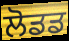
ਲੋਡਡ